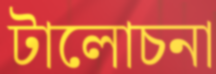
টালোচনা